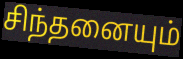
சிந்தனையும்